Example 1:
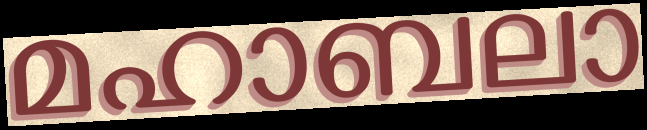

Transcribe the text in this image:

മഹാബലാ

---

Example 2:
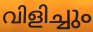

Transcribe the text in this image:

വിളിച്ചും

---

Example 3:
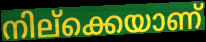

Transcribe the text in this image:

നില്ക്കെയാണ്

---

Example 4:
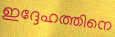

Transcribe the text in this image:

ഇദ്ദേഹത്തിനെ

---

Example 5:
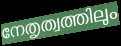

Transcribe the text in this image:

നേതൃത്വത്തിലും